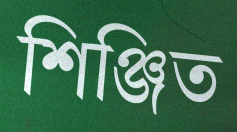
শিঞ্জিত